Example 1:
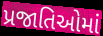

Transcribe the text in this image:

પ્રજાતિઓમાં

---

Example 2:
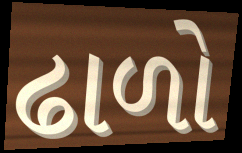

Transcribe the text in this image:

ઢાળો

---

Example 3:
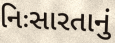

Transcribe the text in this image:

નિઃસારતાનું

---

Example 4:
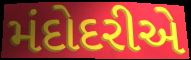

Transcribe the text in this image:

મંદોદરીએ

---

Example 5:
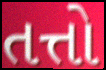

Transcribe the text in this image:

તત્તો